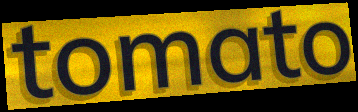
tomato